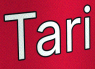
Tari